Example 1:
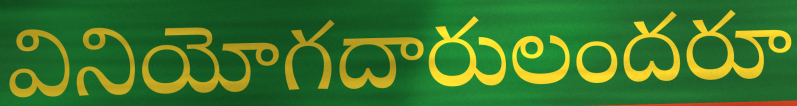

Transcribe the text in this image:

వినియోగదారులందరూ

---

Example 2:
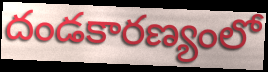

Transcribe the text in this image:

దండకారణ్యంలో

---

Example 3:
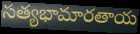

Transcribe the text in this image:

సత్యభామారతాయ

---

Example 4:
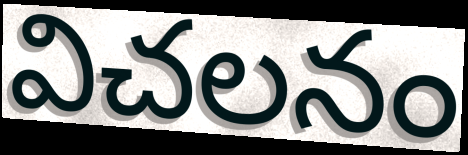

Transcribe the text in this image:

విచలనం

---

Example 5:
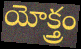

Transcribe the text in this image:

యోక్త్రం